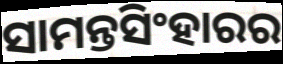
ସାମନ୍ତସିଂହାରର